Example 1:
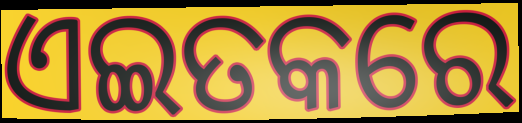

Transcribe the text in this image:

ଏଇତକରେ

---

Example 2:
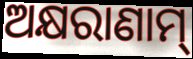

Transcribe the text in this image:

ଅକ୍ଷରାଣାମ୍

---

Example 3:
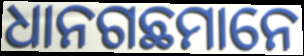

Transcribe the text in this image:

ଧାନଗଛମାନେ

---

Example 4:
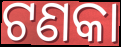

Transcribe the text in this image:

ଟଣକା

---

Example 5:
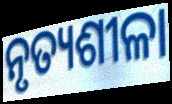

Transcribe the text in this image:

ନୃତ୍ୟଶୀଳା